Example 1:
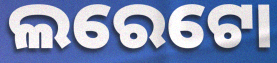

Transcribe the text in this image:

ଲରେଟୋ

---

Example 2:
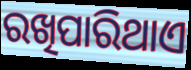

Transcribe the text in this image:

ରଖିପାରିଥାଏ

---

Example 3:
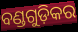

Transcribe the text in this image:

ବଣ୍ଡଗୁଡ଼ିକର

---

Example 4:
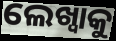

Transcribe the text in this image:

ଲେଖ୍ବାକୁ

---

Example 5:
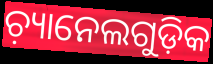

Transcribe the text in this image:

ଚ଼୍ୟାନେଲଗୁଡ଼ିକ